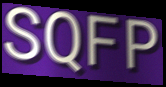
SQFP